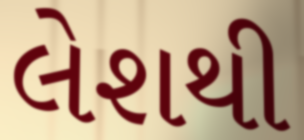
લેશથી